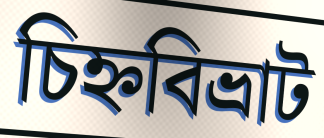
চিহ্নবিভ্রাট